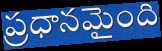
ప్రధానమైంది